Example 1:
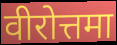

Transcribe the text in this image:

वीरोत्तमा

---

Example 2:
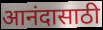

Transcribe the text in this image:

आनंदासाठी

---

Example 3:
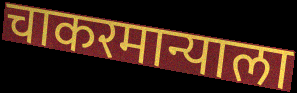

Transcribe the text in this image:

चाकरमान्याला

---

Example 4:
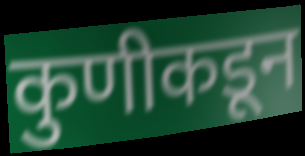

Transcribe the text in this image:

कुणीकडून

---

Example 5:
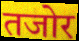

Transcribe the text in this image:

तजोर